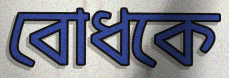
বোধকে